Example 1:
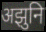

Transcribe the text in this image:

अझुनि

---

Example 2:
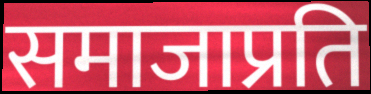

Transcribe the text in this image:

समाजाप्रति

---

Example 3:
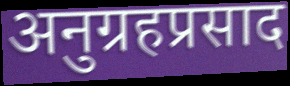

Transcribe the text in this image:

अनुग्रहप्रसाद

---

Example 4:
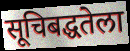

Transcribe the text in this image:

सूचिबद्धतेला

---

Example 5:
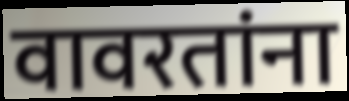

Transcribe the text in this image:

वावरतांना